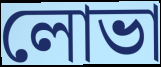
লোভা